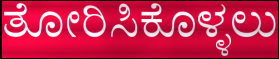
ತೋರಿಸಿಕೊಳ್ಳಲು